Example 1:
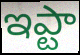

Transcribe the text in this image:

ఇప్టా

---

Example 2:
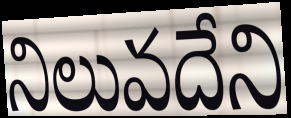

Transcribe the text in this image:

నిలువదేని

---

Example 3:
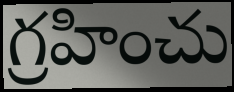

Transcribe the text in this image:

గ్రహించు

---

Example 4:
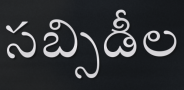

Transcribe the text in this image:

సబ్సిడీల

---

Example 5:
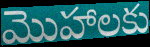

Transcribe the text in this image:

మొహాలకు